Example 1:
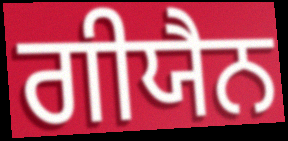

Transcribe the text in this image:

ਗੀਯੈਨ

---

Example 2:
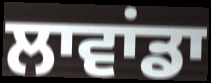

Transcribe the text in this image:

ਲਾਵਾਂਡਾ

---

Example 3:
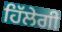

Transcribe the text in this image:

ਹਿੱਲੇਗੀ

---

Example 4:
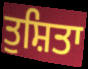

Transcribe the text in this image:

ਤੁਸ਼ਿਤਾ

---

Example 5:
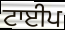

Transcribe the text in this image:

ਟਾਈਪ